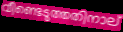
വീണ്ടെടുത്തതിനാല്